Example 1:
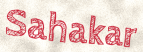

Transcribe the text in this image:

Sahakar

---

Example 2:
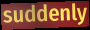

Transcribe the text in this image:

suddenly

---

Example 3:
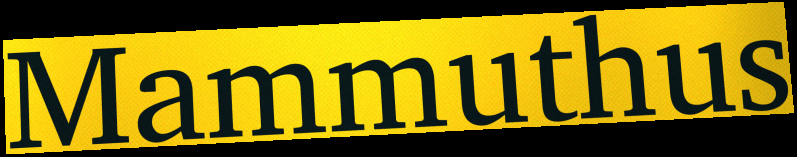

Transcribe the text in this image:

Mammuthus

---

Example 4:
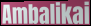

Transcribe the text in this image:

Ambalikai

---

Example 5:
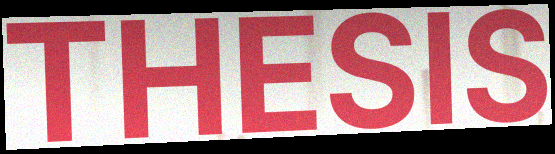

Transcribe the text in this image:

THESIS